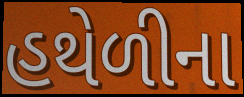
હથેળીના